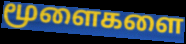
மூளைகளை